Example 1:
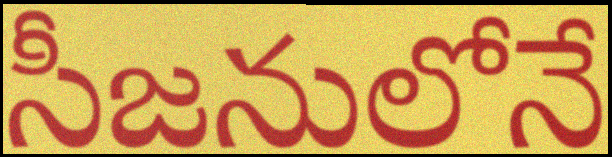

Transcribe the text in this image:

సీజనులోనే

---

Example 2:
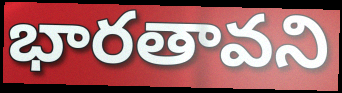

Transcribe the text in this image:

భారతావని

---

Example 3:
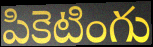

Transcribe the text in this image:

పికెటింగు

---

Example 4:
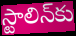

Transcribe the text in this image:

స్టాలిన్‌కు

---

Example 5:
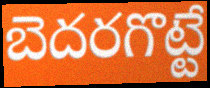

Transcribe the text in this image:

బెదరగొట్టే